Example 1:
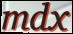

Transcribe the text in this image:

mdx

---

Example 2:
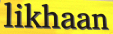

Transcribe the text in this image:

likhaan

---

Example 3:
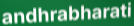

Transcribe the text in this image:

andhrabharati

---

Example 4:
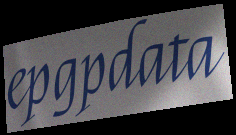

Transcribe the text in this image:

epgpdata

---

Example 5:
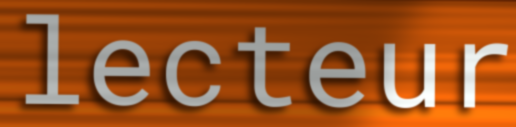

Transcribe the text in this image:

lecteur